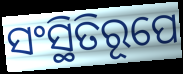
ସଂସ୍ଥିତିରୂପେ